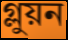
গ্লুয়ন